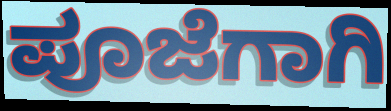
ಪೂಜೆಗಾಗಿ